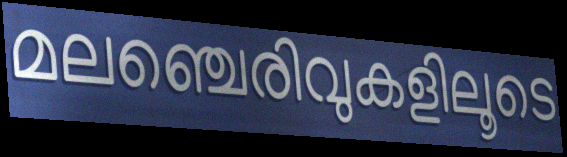
മലഞ്ചെരിവുകളിലൂടെ